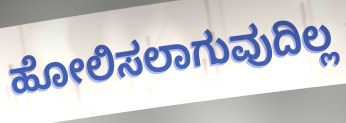
ಹೋಲಿಸಲಾಗುವುದಿಲ್ಲ